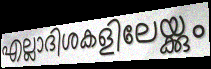
എല്ലാദിശകളിലേയ്ക്കും